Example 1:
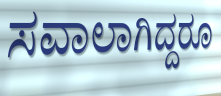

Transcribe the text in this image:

ಸವಾಲಾಗಿದ್ದರೂ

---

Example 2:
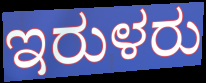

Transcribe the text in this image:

ಇರುಳರು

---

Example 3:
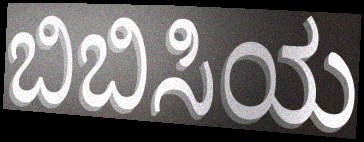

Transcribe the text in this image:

ಬಿಬಿಸಿಯ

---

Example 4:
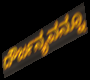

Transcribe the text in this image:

ದೌರ್ಜನ್ಯವನ್ನೂ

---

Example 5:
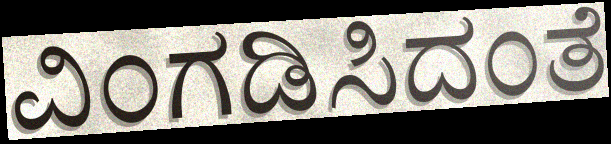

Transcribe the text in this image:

ವಿಂಗಡಿಸಿದಂತೆ